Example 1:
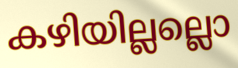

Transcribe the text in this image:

കഴിയില്ലല്ലൊ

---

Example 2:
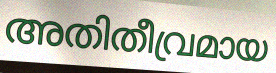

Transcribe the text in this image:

അതിതീവ്രമായ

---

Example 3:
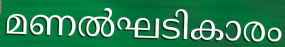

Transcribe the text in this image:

മണൽഘടികാരം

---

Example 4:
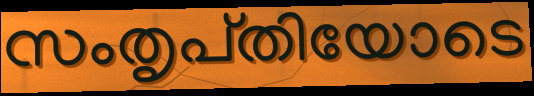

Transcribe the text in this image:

സംതൃപ്‌തിയോടെ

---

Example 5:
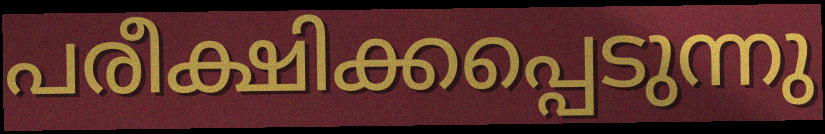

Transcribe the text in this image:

പരീക്ഷിക്കപ്പെടുന്നു